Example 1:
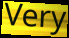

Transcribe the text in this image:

Very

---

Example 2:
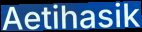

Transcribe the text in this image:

Aetihasik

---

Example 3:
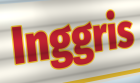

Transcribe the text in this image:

Inggris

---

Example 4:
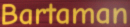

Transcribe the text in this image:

Bartaman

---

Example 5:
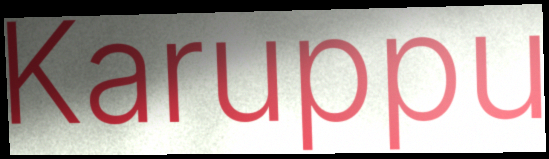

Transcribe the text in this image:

Karuppu